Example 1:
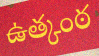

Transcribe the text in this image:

ఉత్కంఠ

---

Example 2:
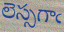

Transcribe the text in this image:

లెస్సగాఁ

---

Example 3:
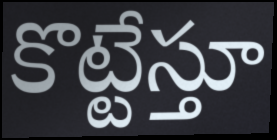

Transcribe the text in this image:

కొట్టేస్తూ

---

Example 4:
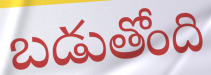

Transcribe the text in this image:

బడుతోంది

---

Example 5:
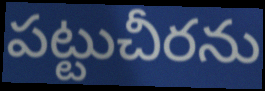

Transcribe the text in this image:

పట్టుచీరను